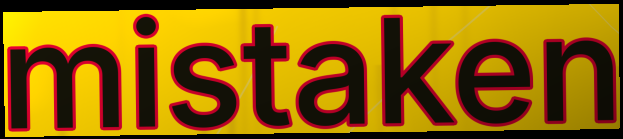
mistaken